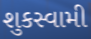
શુકસ્વામી